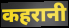
कहरानी